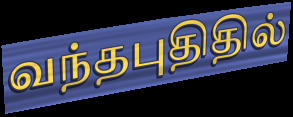
வந்தபுதிதில்